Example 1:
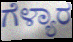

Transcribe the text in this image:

ಗೆಳ್ಯಾರ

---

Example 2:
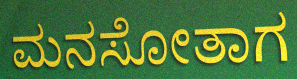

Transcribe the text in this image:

ಮನಸೋತಾಗ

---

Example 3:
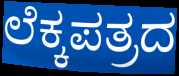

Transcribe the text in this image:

ಲೆಕ್ಕಪತ್ರದ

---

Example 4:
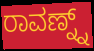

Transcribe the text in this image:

ರಾವಣ್ನ್ನ್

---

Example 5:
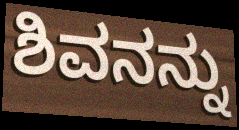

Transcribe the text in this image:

ಶಿವನನ್ನು